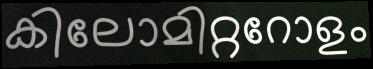
കിലോമിറ്ററോളം